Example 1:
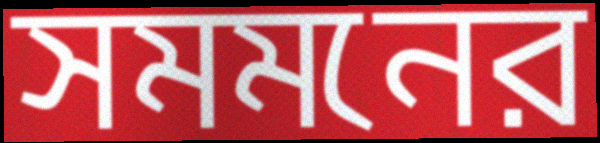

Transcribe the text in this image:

সমমনের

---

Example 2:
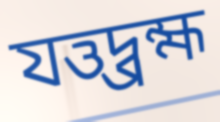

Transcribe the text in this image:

যত্তদ্ব্রহ্ম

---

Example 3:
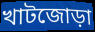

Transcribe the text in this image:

খাটজোড়া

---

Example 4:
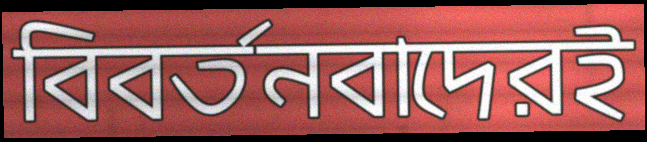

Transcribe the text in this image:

বিবর্তনবাদেরই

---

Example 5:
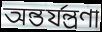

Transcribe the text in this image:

অন্তর্যন্ত্রণা